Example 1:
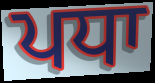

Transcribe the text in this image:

ਪਧਾ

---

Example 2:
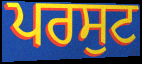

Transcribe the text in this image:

ਪਰਸੁਟ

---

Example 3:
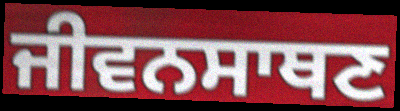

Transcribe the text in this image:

ਜੀਵਨਸਾਥਣ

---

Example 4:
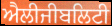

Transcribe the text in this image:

ਐਲੀਜੀਬਲਿਟੀ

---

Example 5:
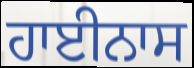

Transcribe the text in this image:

ਹਾਈਨਾਸ